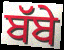
ਬੱਬੇ